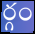
ర్గం